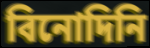
বিনোদিনি